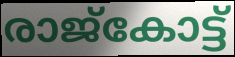
രാജ്കോട്ട്